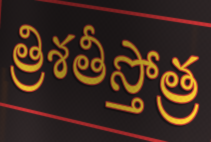
త్రిశతీస్తోత్ర